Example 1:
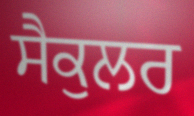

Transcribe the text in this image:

ਸੈਕੁਲਰ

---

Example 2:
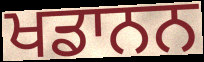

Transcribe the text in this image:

ਖਡਾਨਨ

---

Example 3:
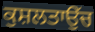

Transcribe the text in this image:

ਕੁਸ਼ਲਤਾਉੱਚ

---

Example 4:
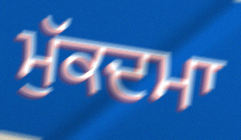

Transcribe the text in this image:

ਮੁੱਕਦਮਾ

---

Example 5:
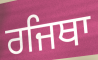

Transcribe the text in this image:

ਰਜਿਥਾ